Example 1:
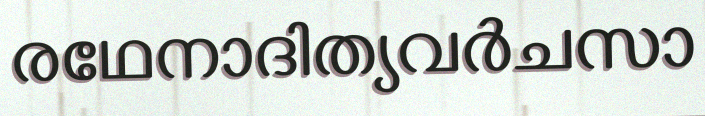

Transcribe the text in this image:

രഥേനാദിത്യവർചസാ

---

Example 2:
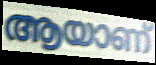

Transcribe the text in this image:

ആയാണ്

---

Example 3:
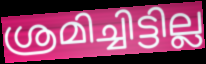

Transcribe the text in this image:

ശ്രമിച്ചിട്ടില്ല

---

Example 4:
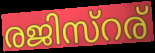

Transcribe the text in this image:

രജിസ്റര്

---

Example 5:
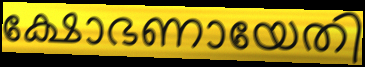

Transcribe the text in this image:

ക്ഷോഭണായേതി